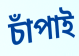
চাঁপাই